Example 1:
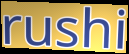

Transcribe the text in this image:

rushi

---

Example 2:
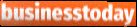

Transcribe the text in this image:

businesstoday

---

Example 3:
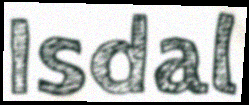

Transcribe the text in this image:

Isdal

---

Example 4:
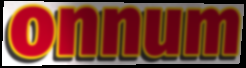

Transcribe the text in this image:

onnum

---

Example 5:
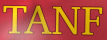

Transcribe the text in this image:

TANF